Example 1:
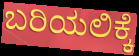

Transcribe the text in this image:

ಬರಿಯಲಿಕ್ಕೆ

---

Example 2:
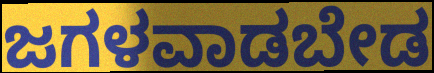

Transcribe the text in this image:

ಜಗಳವಾಡಬೇಡ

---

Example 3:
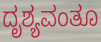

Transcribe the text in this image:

ದೃಶ್ಯವಂತೂ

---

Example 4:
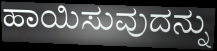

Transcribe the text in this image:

ಹಾಯಿಸುವುದನ್ನು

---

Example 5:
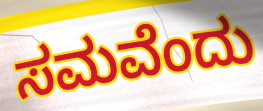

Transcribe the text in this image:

ಸಮವೆಂದು